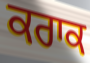
ਕਰਾਕ